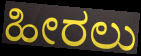
ಹೀರಲು